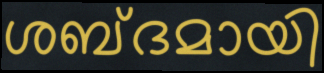
ശബ്ദമായി